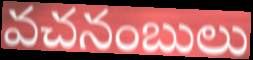
వచనంబులు